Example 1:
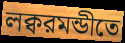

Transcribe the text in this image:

লক্বরমন্ডীতে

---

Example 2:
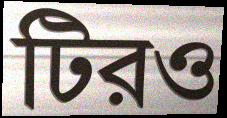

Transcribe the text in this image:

টিরও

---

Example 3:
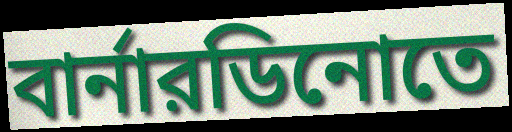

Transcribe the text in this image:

বার্নারডিনোতে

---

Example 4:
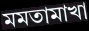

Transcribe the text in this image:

মমতামাখা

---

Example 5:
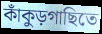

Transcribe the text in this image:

কাঁকুড়গাছিতে